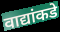
वाद्यांकडे